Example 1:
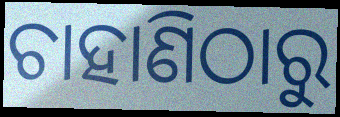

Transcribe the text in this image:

ଚାହାଣିଠାରୁ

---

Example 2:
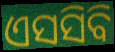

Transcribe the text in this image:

ଏସସିବି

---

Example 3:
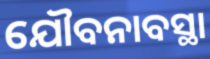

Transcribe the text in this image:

ଯୌବନାବସ୍ଥା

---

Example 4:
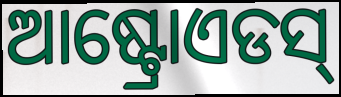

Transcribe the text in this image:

ଆଷ୍ଟ୍ରୋଏଡସ୍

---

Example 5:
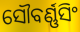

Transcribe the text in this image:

ସୌବର୍ଣ୍ଣସିଂ